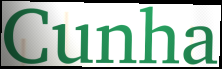
Cunha